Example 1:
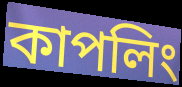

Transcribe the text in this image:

কাপলিং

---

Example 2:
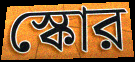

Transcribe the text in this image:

স্কোর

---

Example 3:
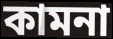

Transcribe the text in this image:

কামনা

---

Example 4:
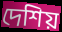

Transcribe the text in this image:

দেশিয়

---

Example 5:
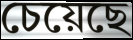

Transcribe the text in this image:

চেয়েছে